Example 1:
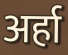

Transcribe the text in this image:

अर्हा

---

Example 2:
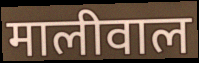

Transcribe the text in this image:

मालीवाल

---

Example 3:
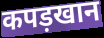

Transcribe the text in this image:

कपड़खान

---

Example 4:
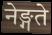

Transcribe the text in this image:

नेङ्गते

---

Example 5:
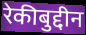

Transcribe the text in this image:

रेकीबुद्दीन